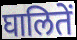
घालितें